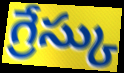
గ్రేస్కు